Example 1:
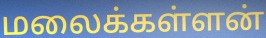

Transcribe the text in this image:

மலைக்கள்ளன்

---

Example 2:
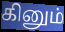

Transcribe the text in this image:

கினும்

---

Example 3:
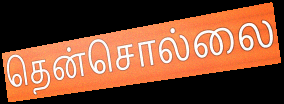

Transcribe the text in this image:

தென்சொல்லை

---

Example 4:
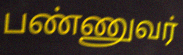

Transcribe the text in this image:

பண்ணுவர்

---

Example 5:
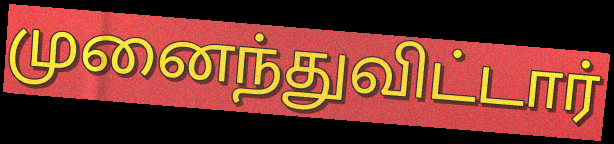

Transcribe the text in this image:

முனைந்துவிட்டார்